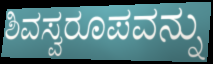
ಶಿವಸ್ವರೂಪವನ್ನು